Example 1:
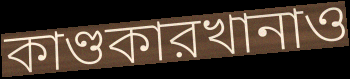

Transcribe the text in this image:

কাণ্ডকারখানাও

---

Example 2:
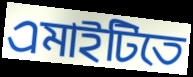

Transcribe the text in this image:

এমাইটিতে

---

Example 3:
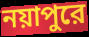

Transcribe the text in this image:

নয়াপুরে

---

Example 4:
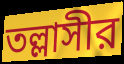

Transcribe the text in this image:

তল্লাসীর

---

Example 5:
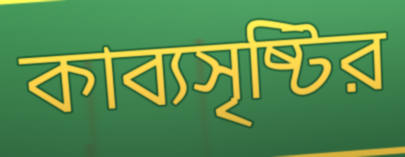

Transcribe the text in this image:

কাব্যসৃষ্টির